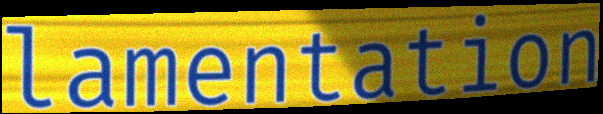
lamentation